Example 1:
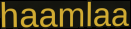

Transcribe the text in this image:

haamlaa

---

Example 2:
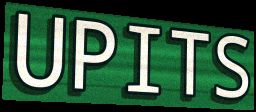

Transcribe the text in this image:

UPITS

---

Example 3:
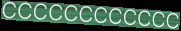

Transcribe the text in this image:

CCCCCCCCCCCC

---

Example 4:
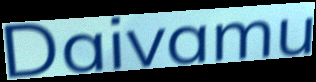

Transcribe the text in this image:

Daivamu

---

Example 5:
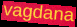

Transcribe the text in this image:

vagdana